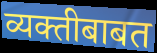
व्यक्तीबाबत